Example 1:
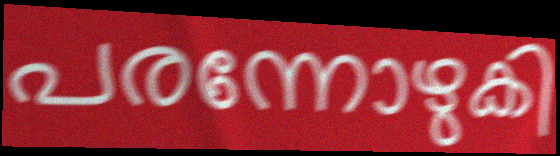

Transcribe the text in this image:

പരന്നോഴുകി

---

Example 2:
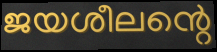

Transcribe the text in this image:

ജയശീലന്റെ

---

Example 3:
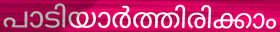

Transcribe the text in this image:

പാടിയാർത്തിരിക്കാം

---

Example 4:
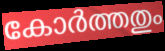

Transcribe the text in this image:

കോർത്തതും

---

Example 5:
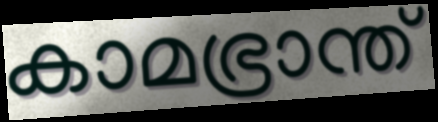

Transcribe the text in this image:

കാമഭ്രാന്ത്